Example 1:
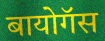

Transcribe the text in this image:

बायोगॅस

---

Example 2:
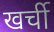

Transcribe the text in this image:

खर्ची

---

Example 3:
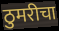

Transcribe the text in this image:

ठुमरीचा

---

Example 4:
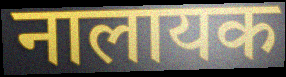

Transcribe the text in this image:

नालायक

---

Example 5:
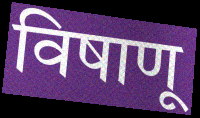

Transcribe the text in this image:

विषाणू